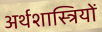
अर्थशास्त्रियों